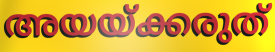
അയയ്ക്കരുത്